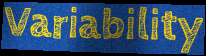
Variability